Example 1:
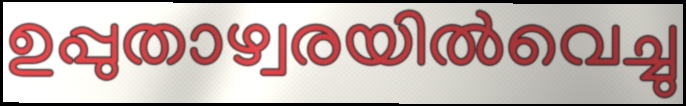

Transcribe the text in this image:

ഉപ്പുതാഴ്വരയിൽവെച്ചു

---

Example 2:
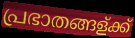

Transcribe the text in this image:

പ്രഭാതങ്ങള്ക്ക്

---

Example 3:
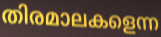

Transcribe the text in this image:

തിരമാലകളെന്ന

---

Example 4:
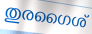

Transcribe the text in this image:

തുരഗൈശ്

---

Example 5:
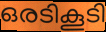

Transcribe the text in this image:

ഒരടികൂടി